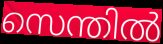
സെന്തിൽ